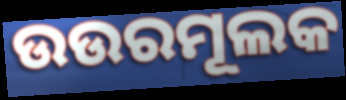
ଉଉରମୂଲକ